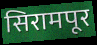
सिरामपूर